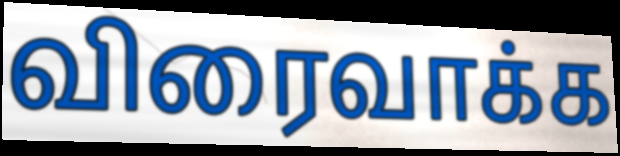
விரைவாக்க